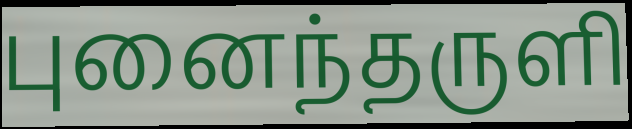
புனைந்தருளி